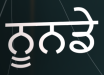
ਨੂਨਡੇ